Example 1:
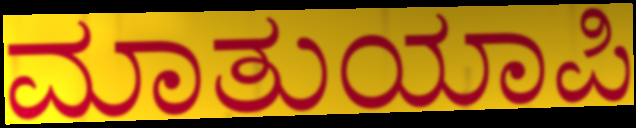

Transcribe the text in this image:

ಮಾತುಯಾಪಿ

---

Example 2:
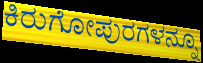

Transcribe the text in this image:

ಕಿರುಗೋಪುರಗಳನ್ನೂ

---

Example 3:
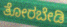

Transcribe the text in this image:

ತೋರಬೇಡಿ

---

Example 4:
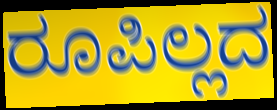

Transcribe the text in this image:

ರೂಪಿಲ್ಲದ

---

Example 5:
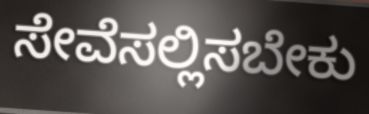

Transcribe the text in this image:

ಸೇವೆಸಲ್ಲಿಸಬೇಕು